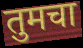
तुमचा